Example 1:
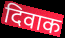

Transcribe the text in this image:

दिवाक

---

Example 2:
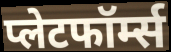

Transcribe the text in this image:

प्लेटफॉर्म्स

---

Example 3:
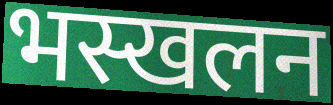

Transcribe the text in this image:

भस्खलन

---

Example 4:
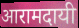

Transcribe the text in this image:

आरामदायी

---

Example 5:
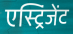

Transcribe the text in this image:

एस्ट्रिंजेंट